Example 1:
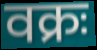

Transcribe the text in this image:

वक्रः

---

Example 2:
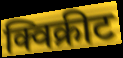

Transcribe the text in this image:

क्विक्रीट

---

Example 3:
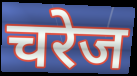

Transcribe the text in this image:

चरेज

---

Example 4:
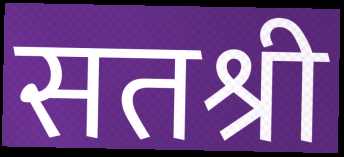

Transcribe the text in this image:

सतश्री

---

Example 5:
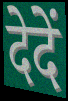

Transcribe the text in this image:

देदें